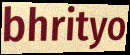
bhrityo